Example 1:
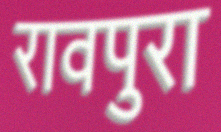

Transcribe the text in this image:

रावपुरा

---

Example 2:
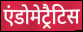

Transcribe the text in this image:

एंडोमेट्रैटिस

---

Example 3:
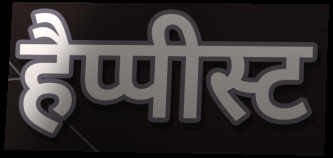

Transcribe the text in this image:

हैप्पीस्ट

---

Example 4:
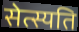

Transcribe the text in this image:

सेत्स्यति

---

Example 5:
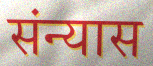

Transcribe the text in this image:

संन्यास